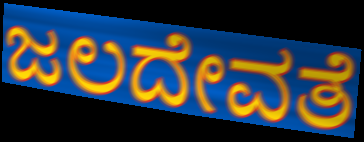
ಜಲದೇವತೆ